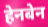
हेनबेन